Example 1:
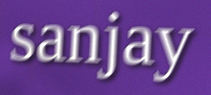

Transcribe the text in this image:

sanjay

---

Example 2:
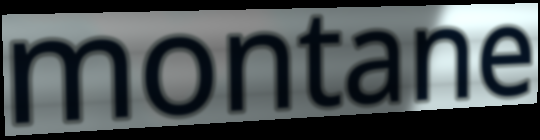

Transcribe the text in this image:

montane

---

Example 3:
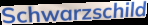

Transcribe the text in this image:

Schwarzschild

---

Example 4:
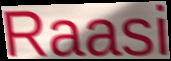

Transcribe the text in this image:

Raasi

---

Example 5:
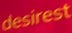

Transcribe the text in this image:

desirest